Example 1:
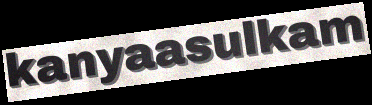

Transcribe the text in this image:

kanyaasulkam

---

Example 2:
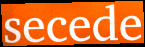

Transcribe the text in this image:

secede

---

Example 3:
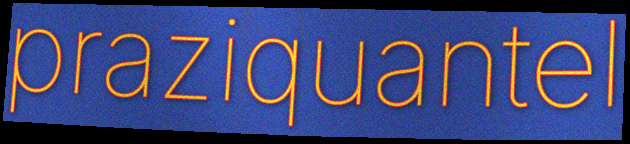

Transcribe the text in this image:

praziquantel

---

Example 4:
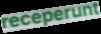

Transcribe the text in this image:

receperunt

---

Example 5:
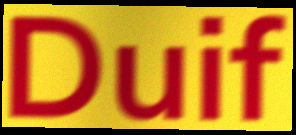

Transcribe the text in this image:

Duif